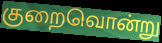
குறைவொன்று